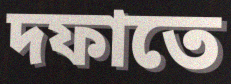
দফাতে